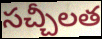
సచ్చీలత